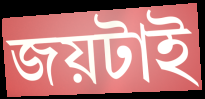
জয়টাই